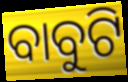
ବାବୁଟି